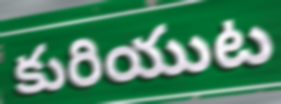
కురియుట